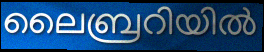
ലൈബ്രറിയിൽ